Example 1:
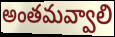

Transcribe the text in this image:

అంతమవ్వాలి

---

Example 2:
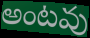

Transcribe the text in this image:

అంటవు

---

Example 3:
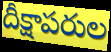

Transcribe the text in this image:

దీక్షాపరుల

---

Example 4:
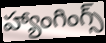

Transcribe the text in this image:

హ్యాంగింగ్స్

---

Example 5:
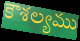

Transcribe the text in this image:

కౌశల్యము